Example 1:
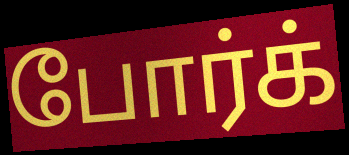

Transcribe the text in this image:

போர்க்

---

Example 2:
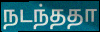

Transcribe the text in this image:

நடந்ததா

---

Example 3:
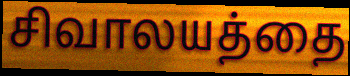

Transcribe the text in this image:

சிவாலயத்தை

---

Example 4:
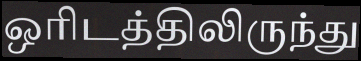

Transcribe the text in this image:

ஒரிடத்திலிருந்து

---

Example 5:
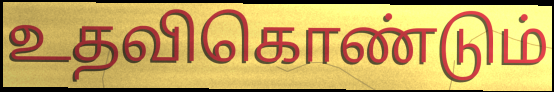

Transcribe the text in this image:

உதவிகொண்டும்